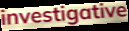
investigative